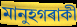
মানুহগৰাকী